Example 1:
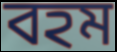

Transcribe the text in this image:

বহম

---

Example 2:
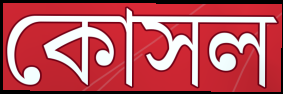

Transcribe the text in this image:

কোসল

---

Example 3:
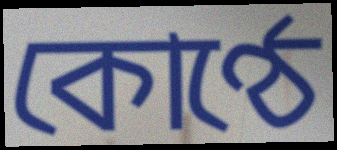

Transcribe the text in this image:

কোণ্ঠে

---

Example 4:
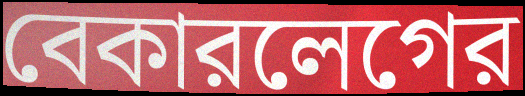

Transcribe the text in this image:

বেকারলেগের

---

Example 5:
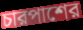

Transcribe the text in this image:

চারপাশের